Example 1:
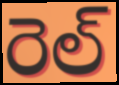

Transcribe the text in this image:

రెల్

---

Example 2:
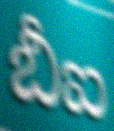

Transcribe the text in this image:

బీఐ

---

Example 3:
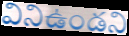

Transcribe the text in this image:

వినిఉండని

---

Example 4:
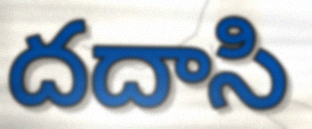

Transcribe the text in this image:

దదాసి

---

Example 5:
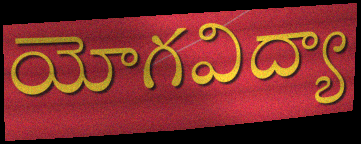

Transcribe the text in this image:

యోగవిద్యా